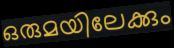
ഒരുമയിലേക്കും